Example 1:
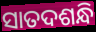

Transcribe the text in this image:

ସାତଦଶନ୍ଧି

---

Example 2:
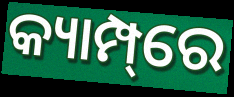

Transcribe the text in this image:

କ୍ୟାମ୍ପ୍‌ରେ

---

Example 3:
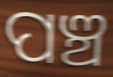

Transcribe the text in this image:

ପଞ୍ଚ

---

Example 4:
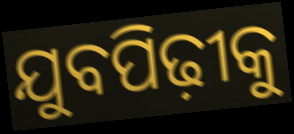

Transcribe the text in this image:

ଯୁବପିଢ଼ୀକୁ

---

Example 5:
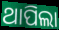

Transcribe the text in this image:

ଥାପିଲା